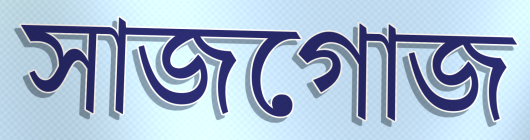
সাজগোজ